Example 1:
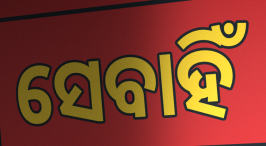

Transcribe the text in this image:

ସେବାହିଁ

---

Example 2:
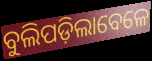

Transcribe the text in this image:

ବୁଲିପଡ଼ିଲାବେଳେ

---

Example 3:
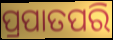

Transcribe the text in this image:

ପ୍ରପାତପରି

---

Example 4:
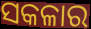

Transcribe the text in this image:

ସକଳାର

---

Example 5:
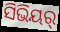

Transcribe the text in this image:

ସିଭିୟର୍